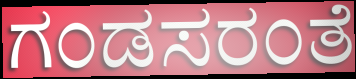
ಗಂಡಸರಂತೆ